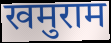
खमुराम